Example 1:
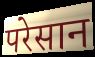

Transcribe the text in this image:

परेसान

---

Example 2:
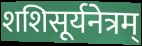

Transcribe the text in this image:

शशिसूर्यनेत्रम्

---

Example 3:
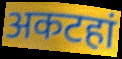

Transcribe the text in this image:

अकटहां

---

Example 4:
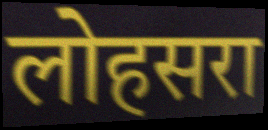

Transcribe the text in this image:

लोहसरा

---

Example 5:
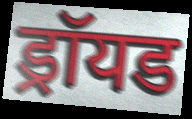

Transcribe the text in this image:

ड्रॉयड